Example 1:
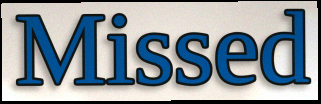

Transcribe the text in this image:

Missed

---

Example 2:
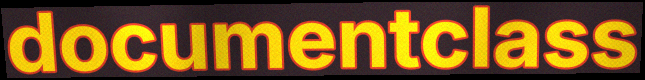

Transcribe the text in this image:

documentclass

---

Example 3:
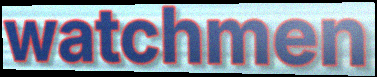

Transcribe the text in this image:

watchmen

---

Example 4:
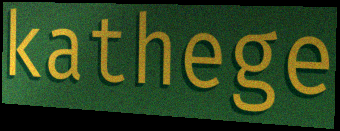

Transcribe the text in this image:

kathege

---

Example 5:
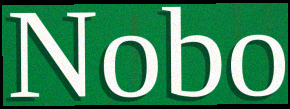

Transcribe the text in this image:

Nobo